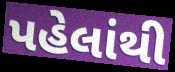
પહેલાંથી